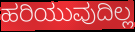
ಹರಿಯುವುದಿಲ್ಲ